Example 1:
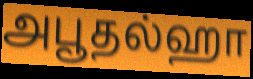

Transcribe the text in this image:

அபூதல்ஹா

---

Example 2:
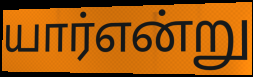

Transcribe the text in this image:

யார்என்று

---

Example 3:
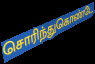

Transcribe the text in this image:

சொரிந்துகொண்டே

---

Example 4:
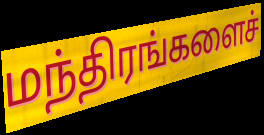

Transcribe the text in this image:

மந்திரங்களைச்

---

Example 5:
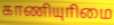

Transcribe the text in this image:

காணியுரிமை